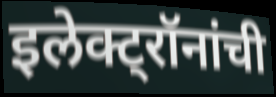
इलेक्ट्रॉनांची